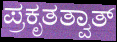
ಪ್ರಕೃತತ್ವಾತ್